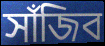
সাঁজিব